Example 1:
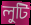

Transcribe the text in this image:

লুটি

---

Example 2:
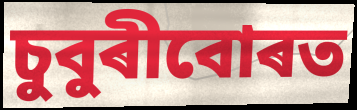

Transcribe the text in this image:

চুবুৰীবোৰত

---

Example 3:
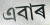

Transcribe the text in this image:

এবাৰ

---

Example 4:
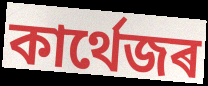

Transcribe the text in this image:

কাৰ্থেজৰ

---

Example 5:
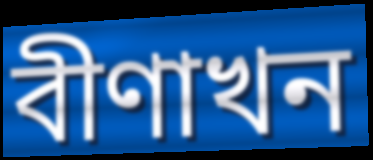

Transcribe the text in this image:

বীণাখন